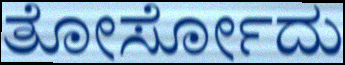
ತೋರ್ಸೋದು